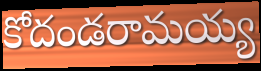
కోదండరామయ్య